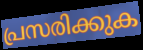
പ്രസരിക്കുക